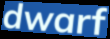
dwarf